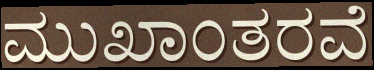
ಮುಖಾಂತರವೆ